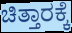
ಚಿತ್ತಾರಕ್ಕೆ